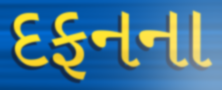
દફનના